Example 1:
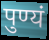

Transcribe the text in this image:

पुण्यं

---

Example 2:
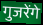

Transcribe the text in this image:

गुजरेंगे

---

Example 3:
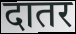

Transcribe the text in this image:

दातर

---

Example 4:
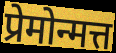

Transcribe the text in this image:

प्रेमोन्मत्त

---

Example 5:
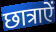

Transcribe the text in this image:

छात्राऐं